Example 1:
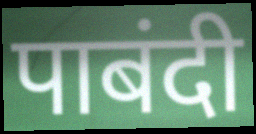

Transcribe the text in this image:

पाबंदी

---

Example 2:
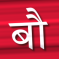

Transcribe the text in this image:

बौ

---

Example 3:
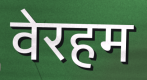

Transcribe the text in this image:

वेरहम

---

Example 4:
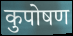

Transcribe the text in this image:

कुपोषण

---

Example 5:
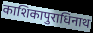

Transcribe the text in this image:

काशिकापुराधिनाथ